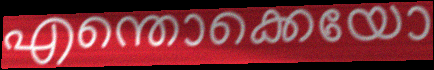
എന്തൊക്കെയോ